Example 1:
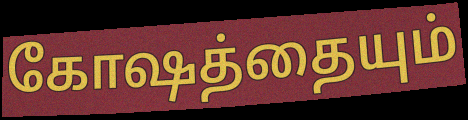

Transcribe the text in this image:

கோஷத்தையும்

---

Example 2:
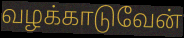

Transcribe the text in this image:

வழக்காடுவேன்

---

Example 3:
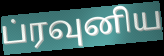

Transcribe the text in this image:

ப்ரவுனிய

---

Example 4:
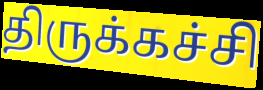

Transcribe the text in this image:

திருக்கச்சி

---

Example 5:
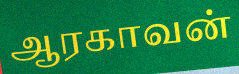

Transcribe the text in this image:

ஆரகாவன்